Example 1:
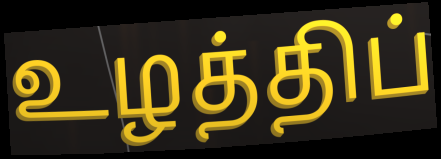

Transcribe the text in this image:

உழத்திப்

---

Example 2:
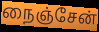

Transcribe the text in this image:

நைஞ்சேன்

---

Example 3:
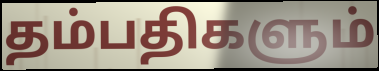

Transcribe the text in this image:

தம்பதிகளும்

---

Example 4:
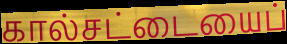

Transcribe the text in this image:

கால்சட்டையைப்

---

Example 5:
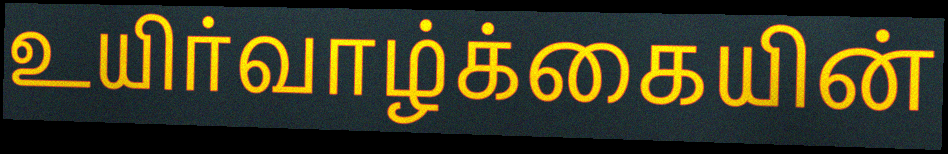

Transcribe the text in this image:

உயிர்வாழ்க்கையின்